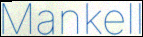
Mankell